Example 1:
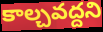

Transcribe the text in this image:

కాల్చవద్దని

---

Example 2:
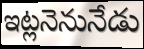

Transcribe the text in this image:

ఇట్లనెనునేడు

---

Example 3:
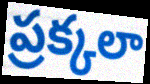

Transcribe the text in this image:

ప్రక్కలా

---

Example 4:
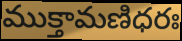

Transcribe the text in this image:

ముక్తామణిధరః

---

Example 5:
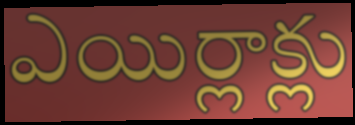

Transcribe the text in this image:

ఎయిర్లాక్లు